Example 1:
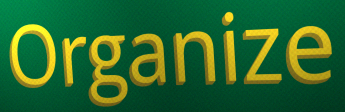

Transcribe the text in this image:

Organize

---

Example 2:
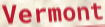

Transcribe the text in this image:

Vermont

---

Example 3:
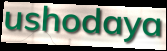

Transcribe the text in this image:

ushodaya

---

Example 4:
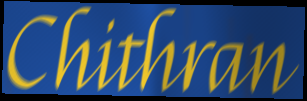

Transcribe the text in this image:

Chithran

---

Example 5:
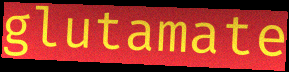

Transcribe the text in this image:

glutamate